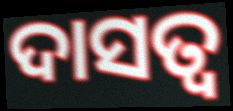
ଦାସତ୍ବ